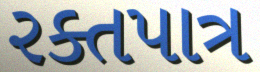
રક્તપાત્ર